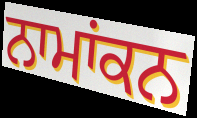
ਨਾਮਾਂਕਨ